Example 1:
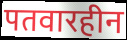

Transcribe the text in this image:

पतवारहीन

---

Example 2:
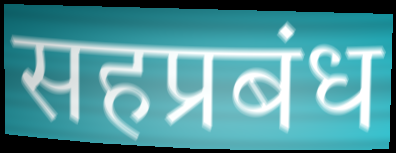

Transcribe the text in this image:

सहप्रबंध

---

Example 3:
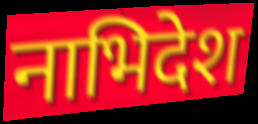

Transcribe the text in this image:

नाभिदेश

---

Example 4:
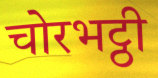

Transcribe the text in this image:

चोरभट्ठी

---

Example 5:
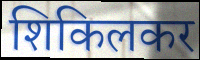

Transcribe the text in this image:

शिकिलकर